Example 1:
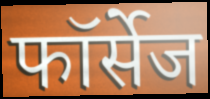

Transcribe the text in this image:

फॉर्सेज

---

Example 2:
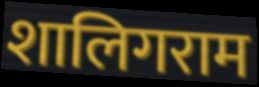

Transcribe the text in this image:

शालिगराम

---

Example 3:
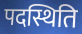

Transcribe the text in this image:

पदस्थिति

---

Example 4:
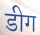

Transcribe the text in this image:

डीग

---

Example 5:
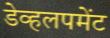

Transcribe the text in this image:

डेव्हलपमेंट